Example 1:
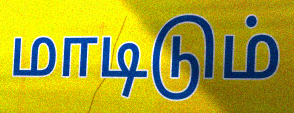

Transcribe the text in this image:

மாடிடும்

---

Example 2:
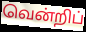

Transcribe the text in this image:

வென்றிப்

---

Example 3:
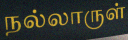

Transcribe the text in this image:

நல்லாருள்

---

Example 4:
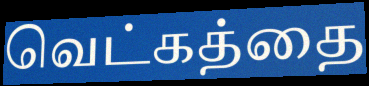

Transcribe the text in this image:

வெட்கத்தை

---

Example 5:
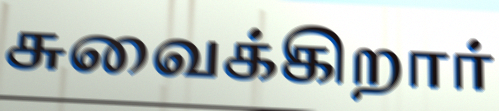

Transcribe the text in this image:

சுவைக்கிறார்